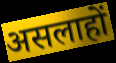
असलाहों